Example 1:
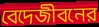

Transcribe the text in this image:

বেদেজীবনের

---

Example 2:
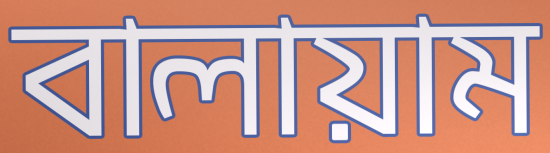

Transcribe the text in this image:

বালায়াম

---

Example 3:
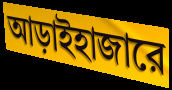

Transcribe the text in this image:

আড়াইহাজারে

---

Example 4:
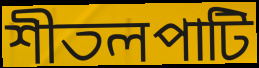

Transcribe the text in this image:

শীতলপাটি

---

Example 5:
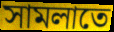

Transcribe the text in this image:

সামলাতে